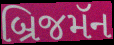
બ્રિજમૅન